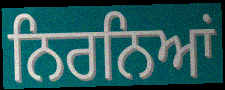
ਨਿਰਨਿਆਂ